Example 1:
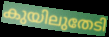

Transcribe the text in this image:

കുയിലുതേടി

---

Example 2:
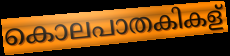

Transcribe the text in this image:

കൊലപാതകികള്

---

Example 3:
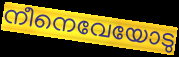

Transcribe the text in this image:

നീനെവേയോടു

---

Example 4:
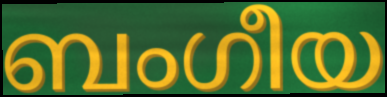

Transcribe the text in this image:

ബംഗീയ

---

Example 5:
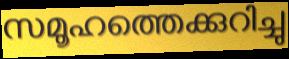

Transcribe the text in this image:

സമൂഹത്തെക്കുറിച്ചു